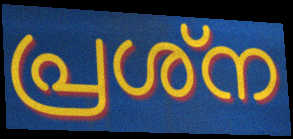
പ്രശ്‌ന